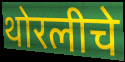
थोरलीचे